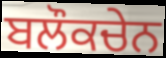
ਬਲੌਕਚੇਨ